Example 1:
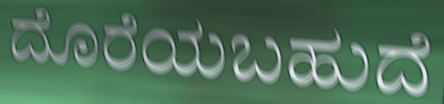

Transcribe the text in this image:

ದೊರೆಯಬಹುದೆ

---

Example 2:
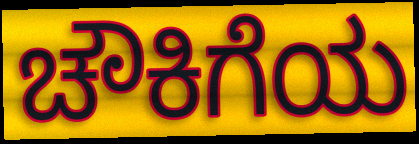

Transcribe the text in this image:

ಚೌಕಿಗೆಯ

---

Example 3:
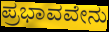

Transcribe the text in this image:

ಪ್ರಭಾವವೇನು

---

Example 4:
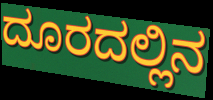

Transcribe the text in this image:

ದೂರದಲ್ಲಿನ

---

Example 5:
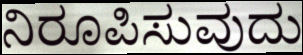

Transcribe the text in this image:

ನಿರೂಪಿಸುವುದು